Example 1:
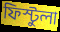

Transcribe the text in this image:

ফিস্টুলা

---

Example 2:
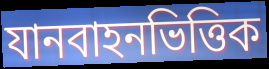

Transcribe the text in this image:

যানবাহনভিত্তিক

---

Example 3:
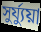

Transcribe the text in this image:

সুর্য্যুয়া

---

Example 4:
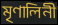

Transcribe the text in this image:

মৃণালিনী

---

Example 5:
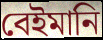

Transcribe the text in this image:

বেইমানি